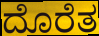
ದೊರೆತ